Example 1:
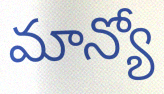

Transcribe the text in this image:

మాన్యో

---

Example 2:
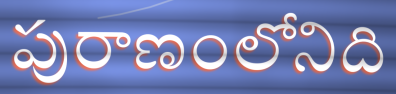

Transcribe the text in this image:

పురాణంలోనిది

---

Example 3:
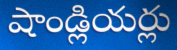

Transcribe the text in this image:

షాండ్లియర్లు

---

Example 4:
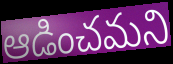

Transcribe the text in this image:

ఆడించమని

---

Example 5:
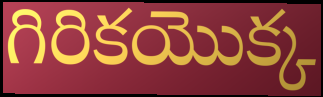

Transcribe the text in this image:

గిరికయొక్క